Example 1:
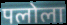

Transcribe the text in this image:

पलोला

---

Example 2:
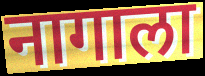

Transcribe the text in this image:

नागाला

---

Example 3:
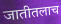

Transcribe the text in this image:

जातीतलाच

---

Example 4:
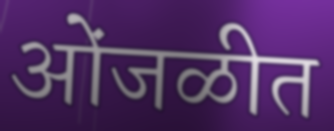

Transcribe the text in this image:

ओंजळीत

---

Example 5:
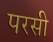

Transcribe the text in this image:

परसी